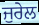
ਜੁਰੇਲ